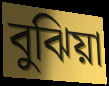
বুঝিয়া